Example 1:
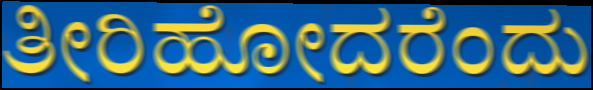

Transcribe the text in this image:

ತೀರಿಹೋದರೆಂದು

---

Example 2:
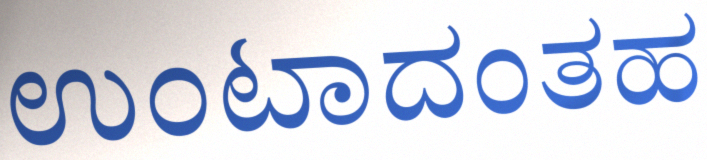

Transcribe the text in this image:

ಉಂಟಾದಂತಹ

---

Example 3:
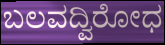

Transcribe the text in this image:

ಬಲವದ್ವಿರೋಧ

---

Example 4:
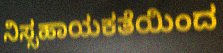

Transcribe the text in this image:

ನಿಸ್ಸಹಾಯಕತೆಯಿಂದ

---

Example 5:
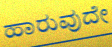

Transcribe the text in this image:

ಹಾರುವುದೇ